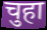
चुहा